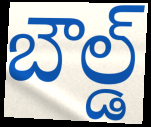
బౌల్డ్